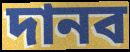
দানব